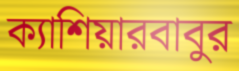
ক্যাশিয়ারবাবুর